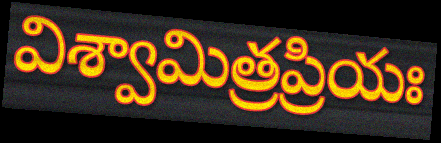
విశ్వామిత్రప్రియః